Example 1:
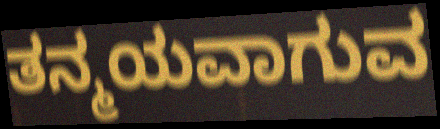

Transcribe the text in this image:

ತನ್ಮಯವಾಗುವ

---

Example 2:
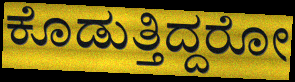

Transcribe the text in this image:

ಕೊಡುತ್ತಿದ್ದರೋ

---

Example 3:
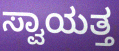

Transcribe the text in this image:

ಸ್ವಾಯತ್ತ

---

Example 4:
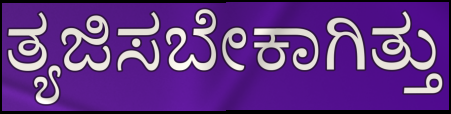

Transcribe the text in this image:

ತ್ಯಜಿಸಬೇಕಾಗಿತ್ತು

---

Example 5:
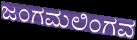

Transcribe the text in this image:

ಜಂಗಮಲಿಂಗವ